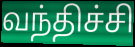
வந்திச்சி